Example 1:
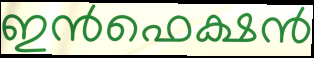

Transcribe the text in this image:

ഇൻഫെക്ഷൻ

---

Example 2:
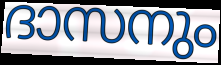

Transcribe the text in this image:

ദാസനും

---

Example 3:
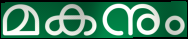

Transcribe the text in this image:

മകനും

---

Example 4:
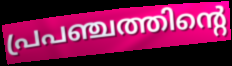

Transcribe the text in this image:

പ്രപഞ്ചത്തിന്റെ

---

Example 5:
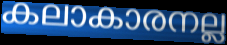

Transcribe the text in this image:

കലാകാരനല്ല